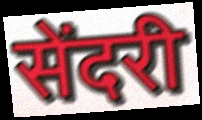
सेंदरी